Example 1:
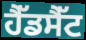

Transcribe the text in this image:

ਹੈੱਡਸੈੱਟ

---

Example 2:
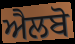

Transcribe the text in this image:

ਐਲਬੋ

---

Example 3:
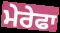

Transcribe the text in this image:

ਮੇਰੇਫਾ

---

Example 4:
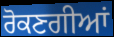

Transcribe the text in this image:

ਰੋਕਣਗੀਆਂ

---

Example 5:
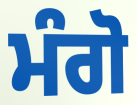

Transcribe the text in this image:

ਮੰਗੋ